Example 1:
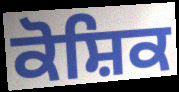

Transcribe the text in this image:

ਕੋਸ਼ਿਕ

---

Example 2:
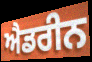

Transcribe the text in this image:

ਐਡਰੀਨ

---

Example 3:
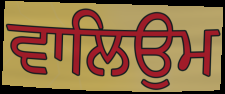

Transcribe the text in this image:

ਵਾਲਿਉਮ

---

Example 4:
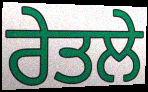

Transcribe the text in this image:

ਰੇਤਲੇ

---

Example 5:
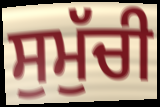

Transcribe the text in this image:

ਸੁਮੁੱਚੀ